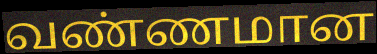
வண்ணமான